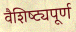
वैशिष्‍ट्यपूर्ण